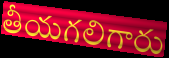
తీయగలిగారు